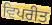
ਵਿਪਰੀਤ